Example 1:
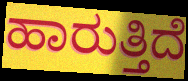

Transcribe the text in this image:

ಹಾರುತ್ತಿದೆ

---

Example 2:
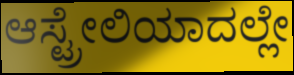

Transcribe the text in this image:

ಆಸ್ಟ್ರೇಲಿಯಾದಲ್ಲೇ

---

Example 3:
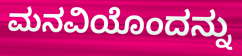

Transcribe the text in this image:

ಮನವಿಯೊಂದನ್ನು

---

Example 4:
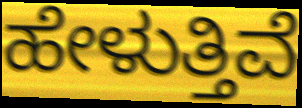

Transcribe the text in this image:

ಹೇಳುತ್ತಿವೆ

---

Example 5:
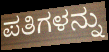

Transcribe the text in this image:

ಪತಿಗಳನ್ನು